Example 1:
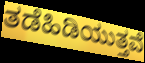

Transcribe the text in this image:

ತಡೆಹಿಡಿಯುತ್ತವೆ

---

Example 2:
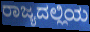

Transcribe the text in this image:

ರಾಜ್ಯದಲ್ಲಿಯ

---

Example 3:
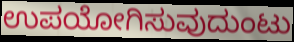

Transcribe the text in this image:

ಉಪಯೋಗಿಸುವುದುಂಟು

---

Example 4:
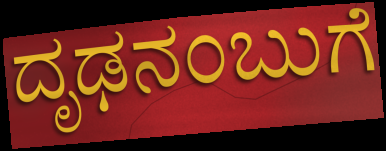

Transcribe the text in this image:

ದೃಢನಂಬುಗೆ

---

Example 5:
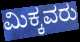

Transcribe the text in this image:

ಮಿಕ್ಕವರು